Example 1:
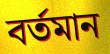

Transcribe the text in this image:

বর্তমান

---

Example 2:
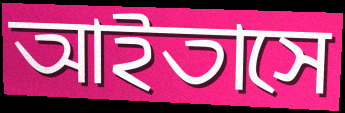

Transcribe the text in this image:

আইতাসে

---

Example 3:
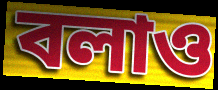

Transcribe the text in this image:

বলাও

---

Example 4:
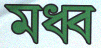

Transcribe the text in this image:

মধ্ব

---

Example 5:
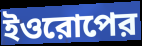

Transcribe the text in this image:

ইওরোপের